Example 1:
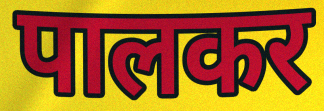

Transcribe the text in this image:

पालकर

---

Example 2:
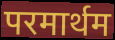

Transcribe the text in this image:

परमार्थम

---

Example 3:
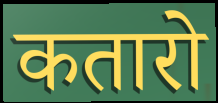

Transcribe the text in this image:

कतारो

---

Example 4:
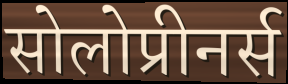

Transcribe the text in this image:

सोलोप्रीनर्स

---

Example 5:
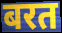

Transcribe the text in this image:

बरत